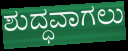
ಶುದ್ಧವಾಗಲು